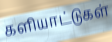
களியாட்டுகள்